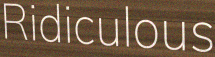
Ridiculous